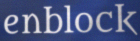
enblock